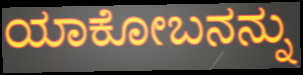
ಯಾಕೋಬನನ್ನು